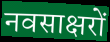
नवसाक्षरों